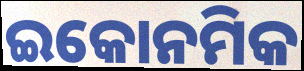
ଇକୋନମିକ